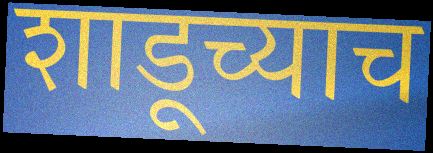
शाडूच्याच